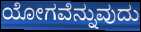
ಯೋಗವೆನ್ನುವುದು